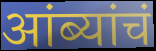
आंब्यांचं